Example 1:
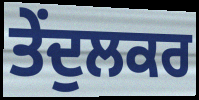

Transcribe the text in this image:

ਤੇਂਦੁਲਕਰ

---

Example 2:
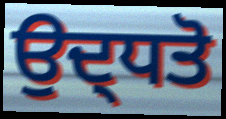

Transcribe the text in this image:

ਉਦ੍ਧਤੋ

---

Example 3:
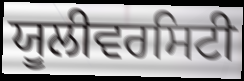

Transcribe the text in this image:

ਯੂਲੀਵਰਸਿਟੀ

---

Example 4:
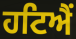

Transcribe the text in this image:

ਹਟਿਐਂ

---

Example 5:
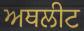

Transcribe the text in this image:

ਅਥਲੀਟ